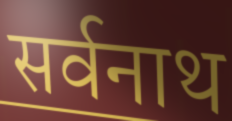
सर्वनाथ